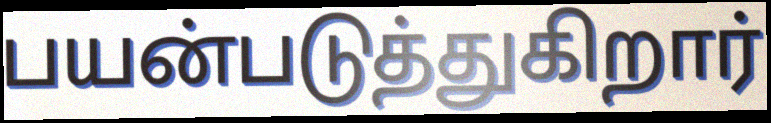
பயன்படுத்துகிறார்